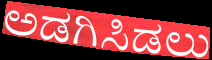
ಅಡಗಿಸಿಡಲು